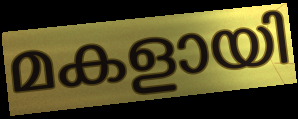
മകളായി